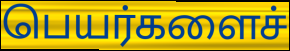
பெயர்களைச்